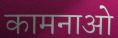
कामनाओ